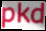
pkd